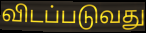
விடப்படுவது